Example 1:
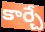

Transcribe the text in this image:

కార్చే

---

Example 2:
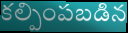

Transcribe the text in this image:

కల్పింపబడిన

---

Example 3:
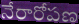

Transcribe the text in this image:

నేరారోపణ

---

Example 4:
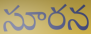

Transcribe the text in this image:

సూరన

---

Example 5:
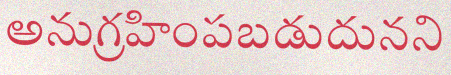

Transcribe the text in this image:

అనుగ్రహింపబడుదునని